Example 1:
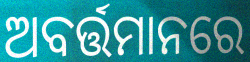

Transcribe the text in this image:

ଅବର୍ତ୍ତମାନରେ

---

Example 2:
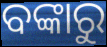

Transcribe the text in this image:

ବଙ୍କାରୁ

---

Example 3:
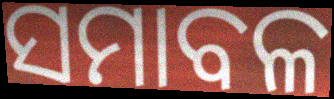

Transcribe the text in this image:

ସମାବଳ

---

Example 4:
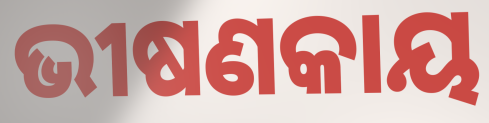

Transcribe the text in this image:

ଭୀଷଣକାୟ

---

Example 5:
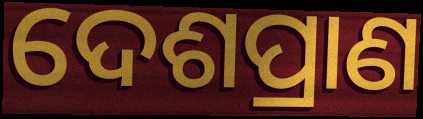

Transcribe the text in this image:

ଦେଶପ୍ରାଣ